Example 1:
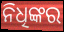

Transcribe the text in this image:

ନିଧିଙ୍କର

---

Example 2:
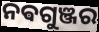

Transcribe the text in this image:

ନଵଗୁଞ୍ଜର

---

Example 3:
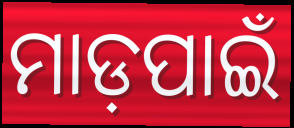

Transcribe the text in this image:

ମାଡ଼ପାଇଁ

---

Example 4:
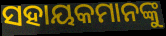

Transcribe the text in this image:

ସହାୟକମାନଙ୍କୁ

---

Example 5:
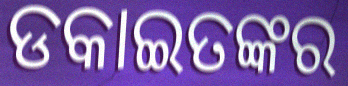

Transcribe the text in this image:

ଡକାଇତଙ୍କର